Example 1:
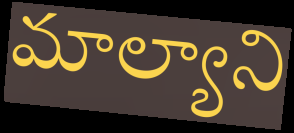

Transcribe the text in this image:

మాల్యాని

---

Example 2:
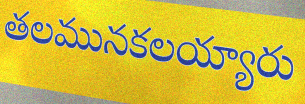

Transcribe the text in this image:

తలమునకలయ్యారు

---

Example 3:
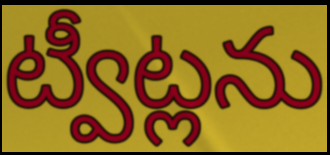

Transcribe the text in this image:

ట్వీట్లను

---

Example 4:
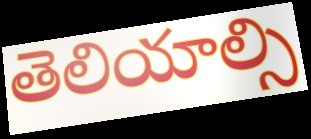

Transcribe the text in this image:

తెలియాల్సి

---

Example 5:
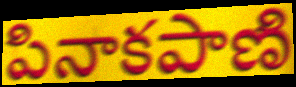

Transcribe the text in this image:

పినాకపాణి